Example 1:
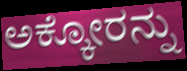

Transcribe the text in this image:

ಅಕ್ಕೋರನ್ನು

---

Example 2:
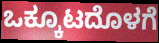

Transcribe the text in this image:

ಒಕ್ಕೂಟದೊಳಗೆ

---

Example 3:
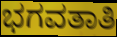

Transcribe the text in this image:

ಭಗವತಾತಿ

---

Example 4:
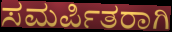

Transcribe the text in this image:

ಸಮರ್ಪಿತರಾಗಿ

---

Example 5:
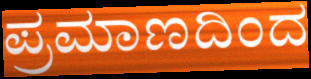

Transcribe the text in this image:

ಪ್ರಮಾಣದಿಂದ